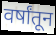
वर्षांतून